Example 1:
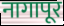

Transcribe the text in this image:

नागापूर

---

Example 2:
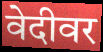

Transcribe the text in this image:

वेदीवर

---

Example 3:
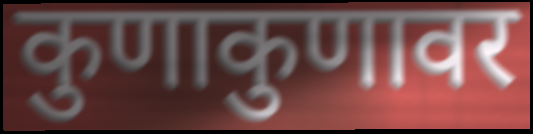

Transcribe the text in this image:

कुणाकुणावर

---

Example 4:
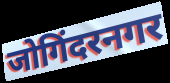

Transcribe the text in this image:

जोगिंदरनगर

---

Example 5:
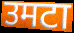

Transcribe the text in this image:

उमटा